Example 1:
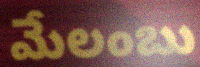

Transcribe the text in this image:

మేలంబు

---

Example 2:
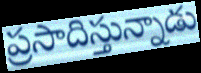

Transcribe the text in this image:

ప్రసాదిస్తున్నాడు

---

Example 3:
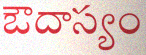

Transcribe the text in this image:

ఔదాస్యం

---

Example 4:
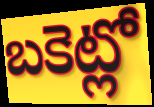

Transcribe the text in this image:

బకెట్లో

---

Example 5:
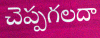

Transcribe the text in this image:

చెప్పగలదా